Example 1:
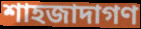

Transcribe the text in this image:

শাহজাদাগণ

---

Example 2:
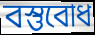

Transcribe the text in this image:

বস্তুবোধ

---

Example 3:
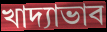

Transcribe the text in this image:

খাদ্যাভাব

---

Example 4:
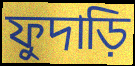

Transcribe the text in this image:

ফুদাড়ি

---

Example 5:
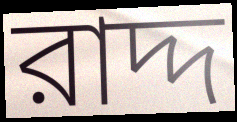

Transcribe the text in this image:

রাদ্দ